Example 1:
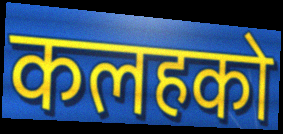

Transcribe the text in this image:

कलहको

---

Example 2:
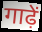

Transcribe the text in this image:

गाढ़ें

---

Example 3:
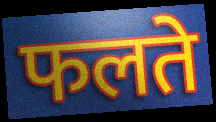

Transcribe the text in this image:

फलते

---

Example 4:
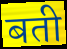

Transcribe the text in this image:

बती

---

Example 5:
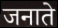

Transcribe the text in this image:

जनाते